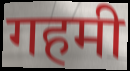
गहमी